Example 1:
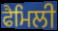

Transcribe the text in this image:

ਫੈਮਿਲੀ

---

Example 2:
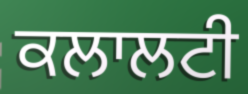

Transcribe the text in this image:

ਕਲਾਲਟੀ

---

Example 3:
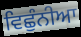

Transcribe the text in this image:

ਵਿਛੁੰਨੀਆ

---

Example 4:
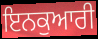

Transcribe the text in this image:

ਇਨਕੁਆਰੀ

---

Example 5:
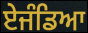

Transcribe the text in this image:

ਏਜੰਡਿਆ